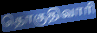
தொகுதிவாரி